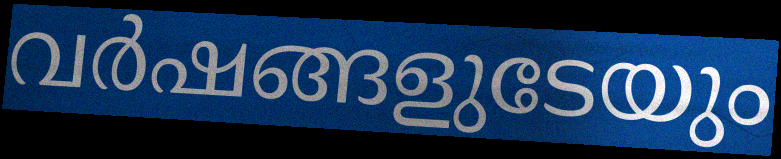
വർഷങ്ങളുടേയും